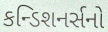
કન્ડિશનર્સનો